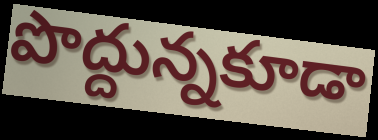
పొద్దున్నకూడా